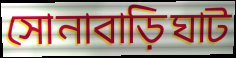
সোনাবাড়িঘাট